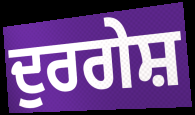
ਦੁਰਗੇਸ਼